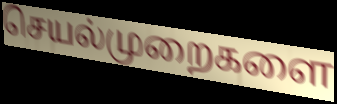
செயல்முறைகளை